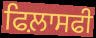
ਫਿਲ਼ਾਸਫੀ